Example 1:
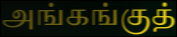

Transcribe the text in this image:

அங்கங்குத்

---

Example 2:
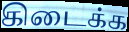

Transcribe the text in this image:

கிடைக்க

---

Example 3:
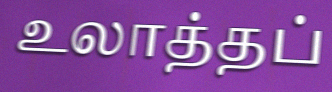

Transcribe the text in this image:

உலாத்தப்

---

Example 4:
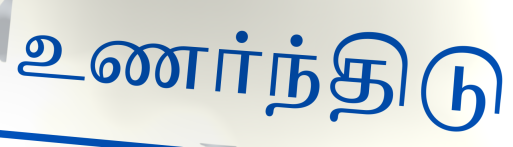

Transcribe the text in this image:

உணர்ந்திடு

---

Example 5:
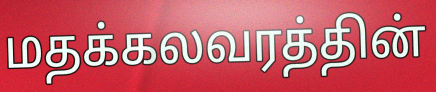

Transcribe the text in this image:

மதக்கலவரத்தின்